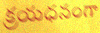
క్రయధనంగా